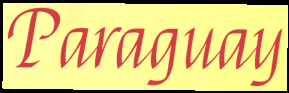
Paraguay